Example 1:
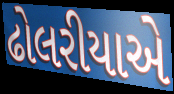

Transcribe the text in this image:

ઢોલરીયાએ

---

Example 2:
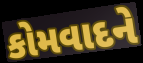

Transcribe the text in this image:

કોમવાદને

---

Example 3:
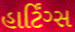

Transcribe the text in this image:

હાર્ટિંગ્સ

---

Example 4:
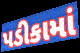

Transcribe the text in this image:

પડીકામાં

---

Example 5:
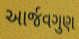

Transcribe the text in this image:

આર્જવગુણ